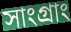
সাংগ্রাং